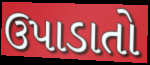
ઉપાડાતો